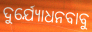
ଦୁର୍ଯ୍ୟୋଧନବାବୁ